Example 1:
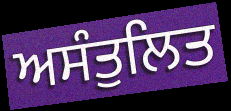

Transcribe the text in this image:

ਅਸੰਤੁਲਿਤ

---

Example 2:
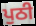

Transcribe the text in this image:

ਪੁਠੀ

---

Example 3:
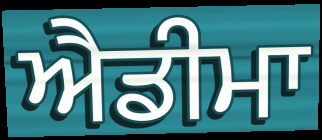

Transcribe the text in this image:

ਐਡੀਮਾ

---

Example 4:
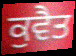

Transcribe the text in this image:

ਕੁਵੈਤ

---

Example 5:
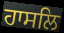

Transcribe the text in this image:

ਹਾਸਲਿ